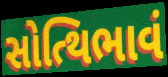
સોત્થિભાવં